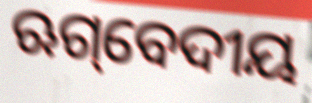
ଋଗ୍‌ବେଦୀୟ